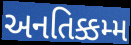
અનતિક્કમ્મ